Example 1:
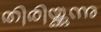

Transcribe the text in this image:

തിരിയ്ക്കുന്നു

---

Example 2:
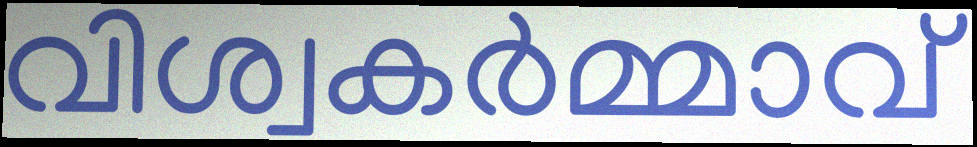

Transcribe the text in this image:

വിശ്വകർമ്മാവ്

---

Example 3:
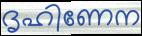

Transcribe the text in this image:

ദൃഹിണേന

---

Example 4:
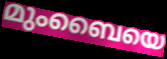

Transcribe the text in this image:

മുംബൈയെ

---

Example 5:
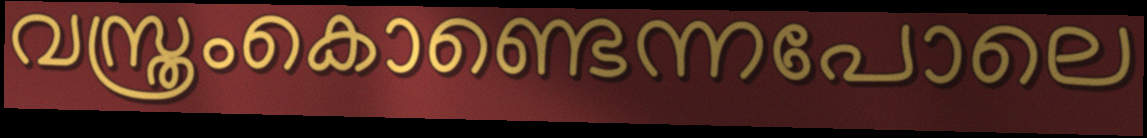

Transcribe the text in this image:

വസ്ത്രംകൊണ്ടെന്നപോലെ